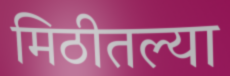
मिठीतल्या